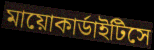
মায়োকার্ডাইটিসে